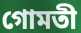
গোমতী